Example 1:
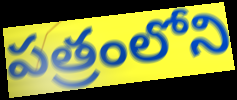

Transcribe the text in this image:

పత్రంలోని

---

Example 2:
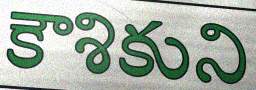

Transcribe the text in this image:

కౌశికుని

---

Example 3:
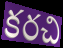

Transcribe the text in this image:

కరచి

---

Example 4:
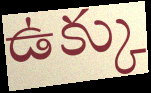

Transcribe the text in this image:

ఉక్కు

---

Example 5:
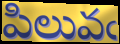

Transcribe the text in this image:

పిలువఁ